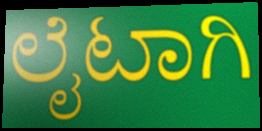
ಲೈಟಾಗಿ